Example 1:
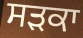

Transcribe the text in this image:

ਸੜਕਾ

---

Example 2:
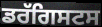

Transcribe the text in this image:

ਡਰੱਗਿਸਟਸ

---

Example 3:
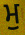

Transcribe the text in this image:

ਮੁ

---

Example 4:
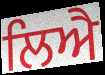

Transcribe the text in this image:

ਲਿਐ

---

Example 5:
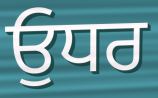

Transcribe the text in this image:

ਓੁਧਰ